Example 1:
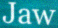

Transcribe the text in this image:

Jaw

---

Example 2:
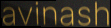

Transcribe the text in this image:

avinash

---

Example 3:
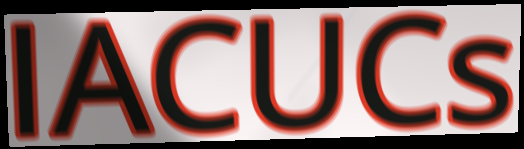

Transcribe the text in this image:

IACUCs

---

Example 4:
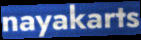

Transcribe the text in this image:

nayakarts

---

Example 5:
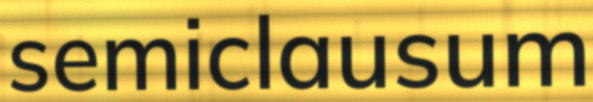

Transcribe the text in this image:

semiclausum